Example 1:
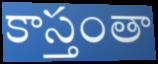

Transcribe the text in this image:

కాస్తంతా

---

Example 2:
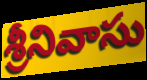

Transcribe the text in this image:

శ్రీనివాసు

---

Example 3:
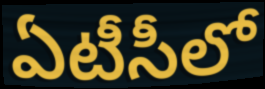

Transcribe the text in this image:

ఏటీసీలో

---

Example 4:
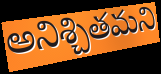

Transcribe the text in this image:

అనిశ్చితమని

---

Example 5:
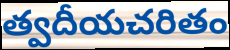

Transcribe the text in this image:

త్వదీయచరితం